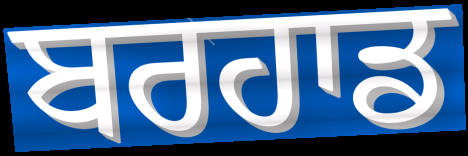
ਬਰਹਾਡ